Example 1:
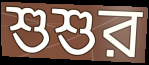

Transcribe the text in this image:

শুশুর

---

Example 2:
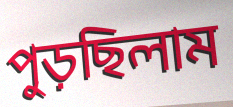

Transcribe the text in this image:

পুড়ছিলাম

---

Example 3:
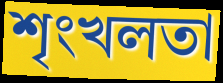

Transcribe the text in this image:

শৃংখলতা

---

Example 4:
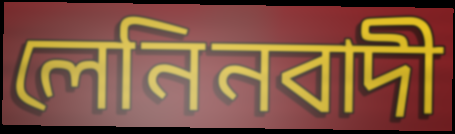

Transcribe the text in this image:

লেনিনবাদী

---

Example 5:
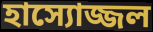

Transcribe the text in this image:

হাস্যোজ্জল